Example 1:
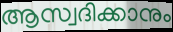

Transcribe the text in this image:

ആസ്വദിക്കാനും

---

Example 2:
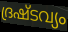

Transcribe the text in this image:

ദ്രഷ്ടവ്യം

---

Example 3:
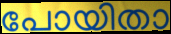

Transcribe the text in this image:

പോയിതാ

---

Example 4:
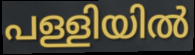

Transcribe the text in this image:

പള്ളിയിൽ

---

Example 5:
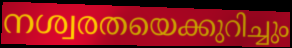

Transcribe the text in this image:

നശ്വരതയെക്കുറിച്ചും